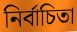
নির্বাচিতা